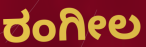
ರಂಗೀಲ